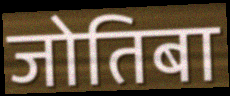
जोतिबा